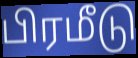
பிரமீடு